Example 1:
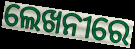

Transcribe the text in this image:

ଲେଖନୀରେ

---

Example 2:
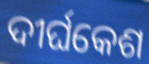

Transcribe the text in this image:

ଦୀର୍ଘକେଶ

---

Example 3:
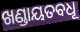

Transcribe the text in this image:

ଖଣ୍ଡାୟତବଧୂ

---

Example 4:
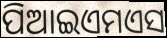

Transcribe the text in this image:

ପିଆଇଏମଏସ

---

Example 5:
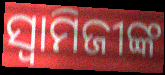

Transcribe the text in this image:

ସ୍ବାମିଜୀଙ୍କ